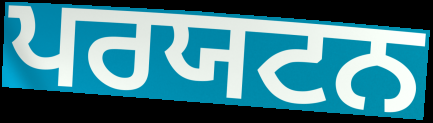
ਪਰਯਟਨ